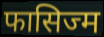
फासिज्म